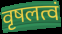
वृषलत्वं